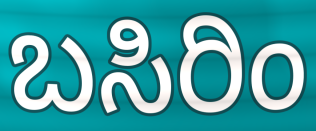
ಬಸಿರಿಂ